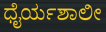
ಧೈರ್ಯಶಾಲೀ